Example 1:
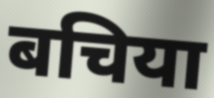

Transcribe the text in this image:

बचिया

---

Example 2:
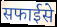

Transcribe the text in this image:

सफाईसे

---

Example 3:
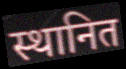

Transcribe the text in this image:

स्थानित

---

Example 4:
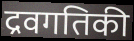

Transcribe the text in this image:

द्रवगतिकी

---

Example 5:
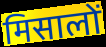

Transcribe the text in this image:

मिसालों